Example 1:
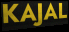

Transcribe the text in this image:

KAJAL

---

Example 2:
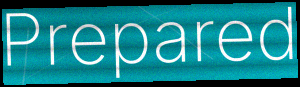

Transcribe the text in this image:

Prepared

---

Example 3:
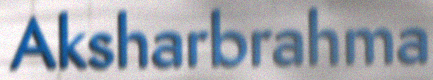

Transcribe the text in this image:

Aksharbrahma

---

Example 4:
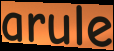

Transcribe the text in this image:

arule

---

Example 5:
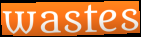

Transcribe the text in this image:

wastes